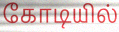
கோடியில்